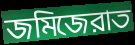
জমিজেরাত